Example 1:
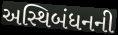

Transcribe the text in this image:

અસ્થિબંધનની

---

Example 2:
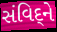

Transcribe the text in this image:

સંવિદ્‌ને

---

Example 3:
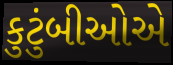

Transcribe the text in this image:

કુટુંબીઓએ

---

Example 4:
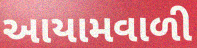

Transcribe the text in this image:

આયામવાળી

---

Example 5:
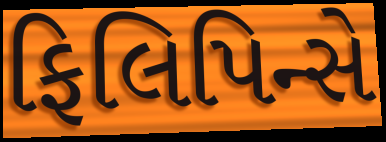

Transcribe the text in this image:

ફિલિપિન્સે